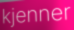
kjenner